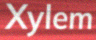
Xylem